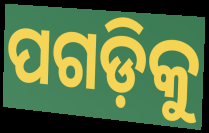
ପଗଡ଼ିକୁ